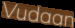
Vudaan